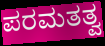
ಪರಮತತ್ವ